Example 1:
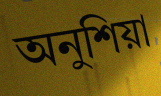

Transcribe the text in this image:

অনুশিয়া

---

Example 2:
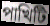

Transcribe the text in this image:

পাখিটি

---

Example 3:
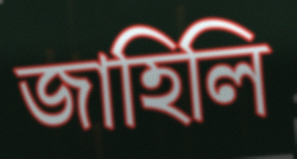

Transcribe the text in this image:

জাহিলি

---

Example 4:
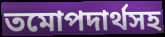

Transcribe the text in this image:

তমোপদার্থসহ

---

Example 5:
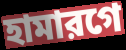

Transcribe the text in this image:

হামারগে